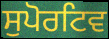
ਸੁਪੋਰਟਿਵ